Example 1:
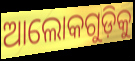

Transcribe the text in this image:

ଆଲୋକଗୁଡ଼ିକୁ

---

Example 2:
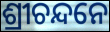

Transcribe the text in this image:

ଶ୍ରୀଚନ୍ଦନେ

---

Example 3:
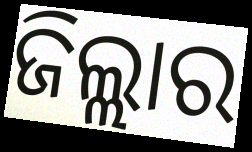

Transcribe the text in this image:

ଜିଲ୍ଲାର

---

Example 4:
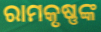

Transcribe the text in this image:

ରାମକୃଷ୍ଣଙ୍କ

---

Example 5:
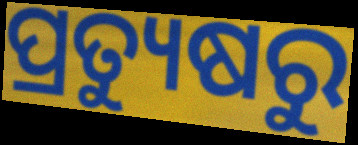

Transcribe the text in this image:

ପ୍ରତ୍ୟୁଷରୁ